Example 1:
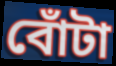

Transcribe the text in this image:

বোঁটা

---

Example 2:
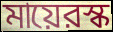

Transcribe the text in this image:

মায়েরস্ক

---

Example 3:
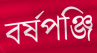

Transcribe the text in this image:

বর্ষপঞ্জি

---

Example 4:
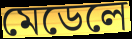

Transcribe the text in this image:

মেডেলে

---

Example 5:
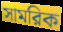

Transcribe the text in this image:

সামরিক